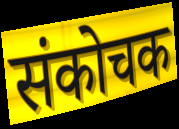
संकोचक